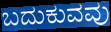
ಬದುಕುವವು